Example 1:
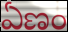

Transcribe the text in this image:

ఏణం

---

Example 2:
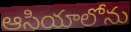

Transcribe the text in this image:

ఆసియాలోను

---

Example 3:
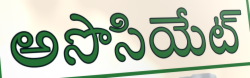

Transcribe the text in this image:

అసొసియేట్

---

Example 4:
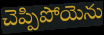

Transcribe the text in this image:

చెప్పిపోయెను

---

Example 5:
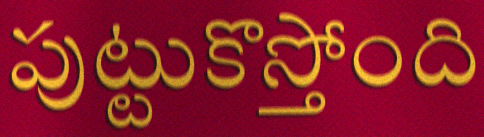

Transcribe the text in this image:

పుట్టుకొస్తోంది